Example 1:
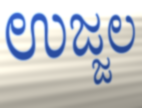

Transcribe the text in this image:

ಉಜ್ಜಲ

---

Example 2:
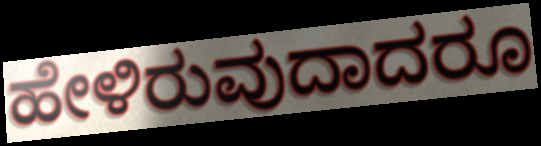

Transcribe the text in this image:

ಹೇಳಿರುವುದಾದರೂ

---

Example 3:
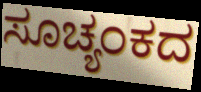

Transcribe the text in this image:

ಸೂಚ್ಯಂಕದ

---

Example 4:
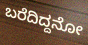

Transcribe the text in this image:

ಬರೆದಿದ್ದನೋ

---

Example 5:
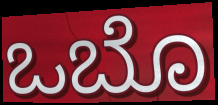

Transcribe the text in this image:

ಒಬೊ